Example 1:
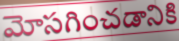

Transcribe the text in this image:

మోసగించడానికి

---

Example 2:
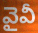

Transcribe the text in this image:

వైవీ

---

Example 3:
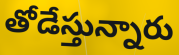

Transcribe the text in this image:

తోడేస్తున్నారు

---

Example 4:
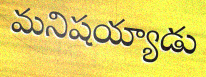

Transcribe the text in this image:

మనిషయ్యాడు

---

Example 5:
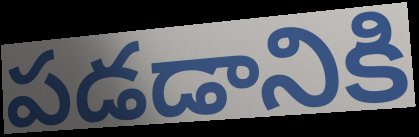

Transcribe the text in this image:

పడడానికి